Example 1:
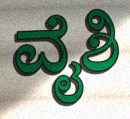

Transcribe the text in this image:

ವೈಶಿ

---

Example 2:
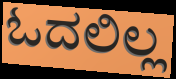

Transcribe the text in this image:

ಓದಲಿಲ್ಲ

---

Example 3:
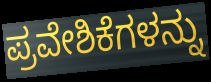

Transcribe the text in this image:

ಪ್ರವೇಶಿಕೆಗಳನ್ನು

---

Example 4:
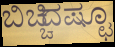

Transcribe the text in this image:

ಬಿಚ್ಚಿದಷ್ಟೂ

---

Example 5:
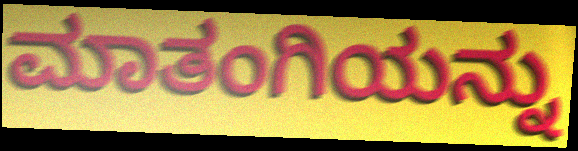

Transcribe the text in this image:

ಮಾತಂಗಿಯನ್ನು